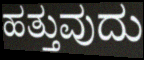
ಹತ್ತುವುದು